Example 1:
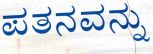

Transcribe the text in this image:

ಪತನವನ್ನು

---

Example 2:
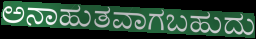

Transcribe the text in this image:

ಅನಾಹುತವಾಗಬಹುದು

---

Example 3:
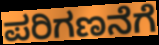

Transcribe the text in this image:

ಪರಿಗಣನೆಗೆ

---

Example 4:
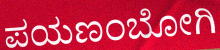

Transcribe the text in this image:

ಪಯಣಂಬೋಗಿ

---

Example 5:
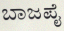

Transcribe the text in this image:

ಬಾಜಪೈ